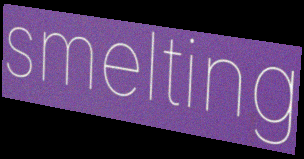
smelting